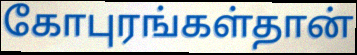
கோபுரங்கள்தான்